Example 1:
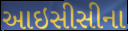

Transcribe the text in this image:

આઇસીસીના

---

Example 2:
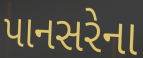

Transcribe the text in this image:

પાનસરેના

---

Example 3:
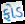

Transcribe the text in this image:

ફોડ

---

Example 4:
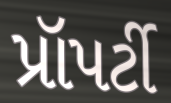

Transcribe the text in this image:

પ્રૉપર્ટી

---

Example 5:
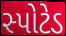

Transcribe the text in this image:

સ્પોટેડ